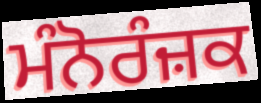
ਮੰਨੋਰੰਜ਼ਕ